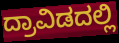
ದ್ರಾವಿಡದಲ್ಲಿ